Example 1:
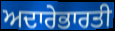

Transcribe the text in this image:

ਅਦਾਰੇਭਾਰਤੀ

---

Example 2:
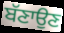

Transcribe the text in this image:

ਬੱਣਾਉਣ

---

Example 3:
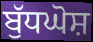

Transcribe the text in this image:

ਬੁੱਧਘੋਸ਼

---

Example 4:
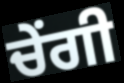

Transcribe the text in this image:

ਚੇਂਗੀ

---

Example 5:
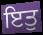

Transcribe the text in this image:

ਇਤੁ